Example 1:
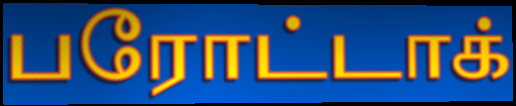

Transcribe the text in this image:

பரோட்டாக்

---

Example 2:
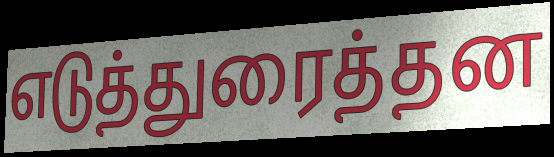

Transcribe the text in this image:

எடுத்துரைத்தன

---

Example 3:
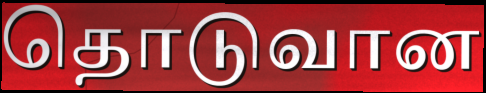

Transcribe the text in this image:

தொடுவான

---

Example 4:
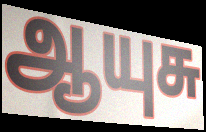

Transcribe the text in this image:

ஆயுசு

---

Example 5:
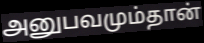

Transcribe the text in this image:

அனுபவமும்தான்